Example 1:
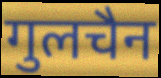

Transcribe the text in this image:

गुलचैन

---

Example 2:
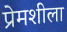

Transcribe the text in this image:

प्रेमशीला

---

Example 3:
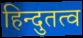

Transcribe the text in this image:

हिन्दुतत्व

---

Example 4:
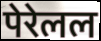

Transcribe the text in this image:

पेरेलल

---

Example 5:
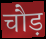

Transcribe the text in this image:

चौड़